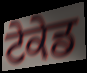
ਟੇਕੇਡ